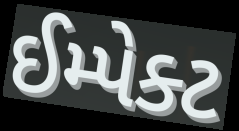
ઈમ્પેક્ટ